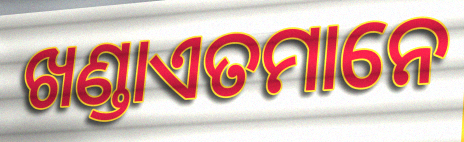
ଖଣ୍ଡାଏତମାନେ